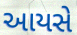
આયસે